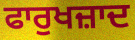
ਫਾਰੁਖਜ਼ਾਦ